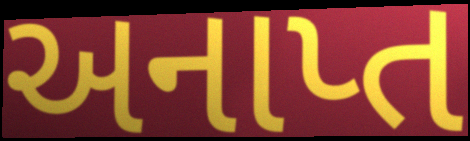
અનાપ્ત